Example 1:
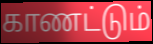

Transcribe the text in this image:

காணட்டும்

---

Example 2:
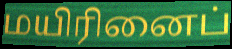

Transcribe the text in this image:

மயிரினைப்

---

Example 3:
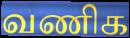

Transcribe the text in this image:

வணிக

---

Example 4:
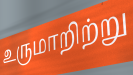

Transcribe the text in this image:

உருமாறிற்று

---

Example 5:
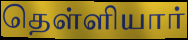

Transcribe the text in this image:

தெள்ளியார்